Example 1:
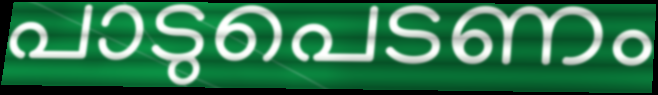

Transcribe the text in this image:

പാടുപെടണം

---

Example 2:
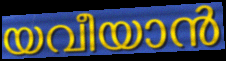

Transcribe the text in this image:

യവീയാൻ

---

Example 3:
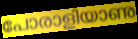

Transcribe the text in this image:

പോരാളിയാണു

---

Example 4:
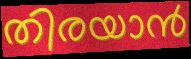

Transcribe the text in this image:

തിരയാൻ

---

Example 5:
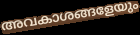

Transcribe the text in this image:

അവകാശങ്ങളേയും